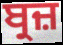
ਬ੍ਰਜ਼